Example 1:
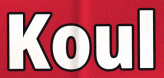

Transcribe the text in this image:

Koul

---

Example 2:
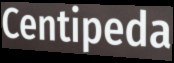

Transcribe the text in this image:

Centipeda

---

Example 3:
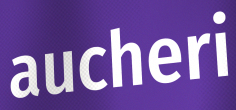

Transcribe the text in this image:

aucheri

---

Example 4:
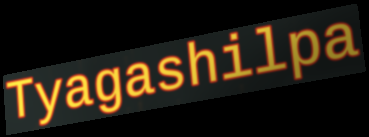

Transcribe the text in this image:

Tyagashilpa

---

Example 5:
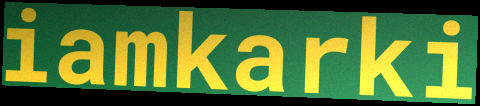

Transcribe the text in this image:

iamkarki